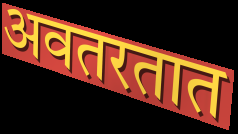
अवतरतात